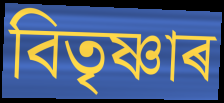
বিতৃষ্ণাৰ